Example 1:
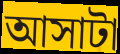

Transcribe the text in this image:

আসাটা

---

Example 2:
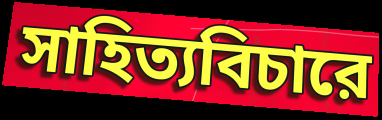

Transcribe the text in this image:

সাহিত্যবিচারে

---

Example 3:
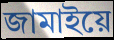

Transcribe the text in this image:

জামাইয়ে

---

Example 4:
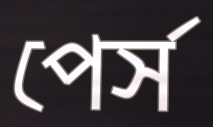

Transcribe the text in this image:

পের্স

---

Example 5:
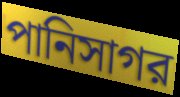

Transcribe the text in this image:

পানিসাগর